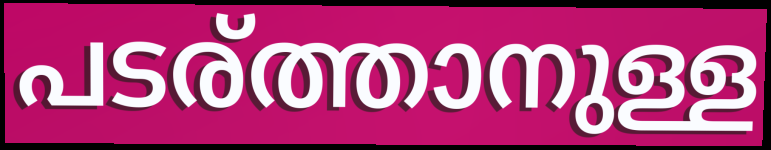
പടര്ത്താനുള്ള